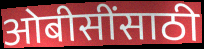
ओबीसींसाठी